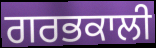
ਗਰਭਕਾਲੀ